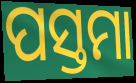
ପସ୍ତମା